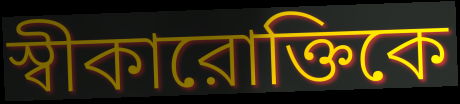
স্বীকারোক্তিকে